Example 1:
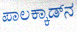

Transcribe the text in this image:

ಪಾಲಕ್ಕಾಡ್‌ನ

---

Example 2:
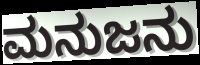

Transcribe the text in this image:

ಮನುಜನು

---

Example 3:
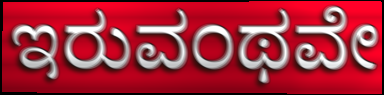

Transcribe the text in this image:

ಇರುವಂಥವೇ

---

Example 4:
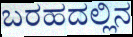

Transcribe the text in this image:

ಬರಹದಲ್ಲಿನ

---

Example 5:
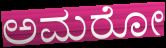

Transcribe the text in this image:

ಅಮರೋ